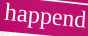
happend